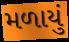
મળાયું